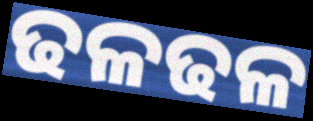
ଢଳଢଳ